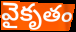
వైకృతం